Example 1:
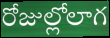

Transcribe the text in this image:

రోజుల్లోలాగ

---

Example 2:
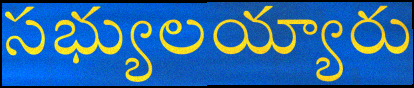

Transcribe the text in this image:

సభ్యులయ్యారు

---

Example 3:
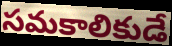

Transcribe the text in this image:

సమకాలికుడే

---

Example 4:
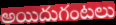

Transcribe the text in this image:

అయిదుగంటలు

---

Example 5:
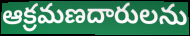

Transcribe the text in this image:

ఆక్రమణదారులను